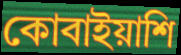
কোবাইয়াশি